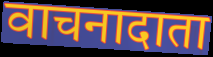
वाचनादाता